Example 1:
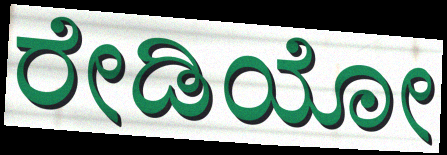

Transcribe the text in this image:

ರೇಡಿಯೋ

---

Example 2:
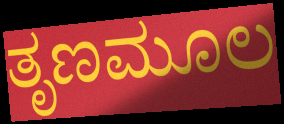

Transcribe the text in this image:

ತೃಣಮೂಲ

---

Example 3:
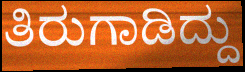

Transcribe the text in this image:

ತಿರುಗಾಡಿದ್ದು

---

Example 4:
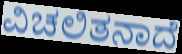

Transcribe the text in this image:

ವಿಚಲಿತನಾದೆ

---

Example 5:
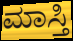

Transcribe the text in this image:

ಮಾಸ್ತಿ